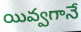
యివ్వగానే